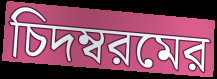
চিদম্বরমের